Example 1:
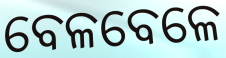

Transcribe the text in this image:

ବେଳବେଳେ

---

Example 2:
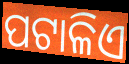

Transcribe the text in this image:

ପଟାଳିଏ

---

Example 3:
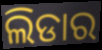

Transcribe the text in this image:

ଲିଡାର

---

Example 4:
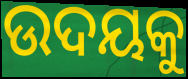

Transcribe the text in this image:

ଉଦୟକୁ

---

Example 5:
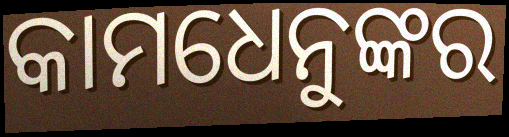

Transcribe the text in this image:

କାମଧେନୁଙ୍କର